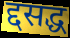
द्दसद्ध